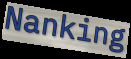
Nanking